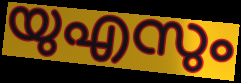
യുഎസും